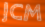
JCM